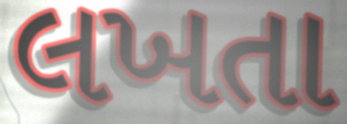
લખતા